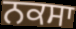
ਨਕਸਾ